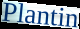
Plantin